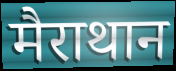
मैराथान